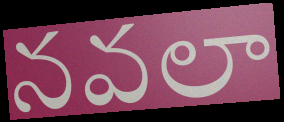
నవలా